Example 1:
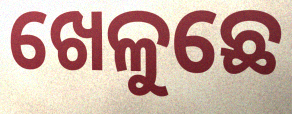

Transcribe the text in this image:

ଖେଳୁଛେ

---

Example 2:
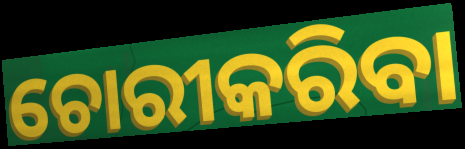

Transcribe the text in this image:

ଚୋରୀକରିବା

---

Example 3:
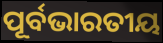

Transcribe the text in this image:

ପୂର୍ବଭାରତୀୟ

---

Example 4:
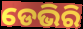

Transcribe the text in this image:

ଡେଭିରି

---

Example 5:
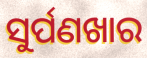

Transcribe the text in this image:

ସୁର୍ପଣଖାର